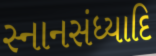
સ્નાનસંધ્યાદિ